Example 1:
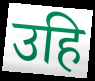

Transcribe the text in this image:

उहि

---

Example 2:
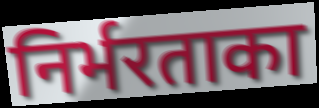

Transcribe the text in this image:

निर्भरताका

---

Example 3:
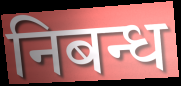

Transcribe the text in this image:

निबन्ध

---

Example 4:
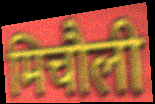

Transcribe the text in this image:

मिचौली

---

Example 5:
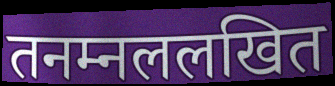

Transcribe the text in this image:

तनम्नललखित